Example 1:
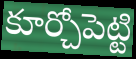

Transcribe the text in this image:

కూర్చోపెట్టి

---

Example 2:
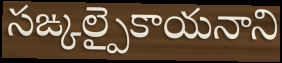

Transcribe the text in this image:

సఙ్కల్పైకాయనాని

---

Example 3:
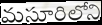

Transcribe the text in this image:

మసూరిలోని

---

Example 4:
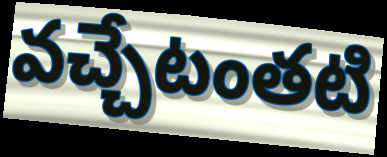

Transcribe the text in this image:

వచ్చేటంతటి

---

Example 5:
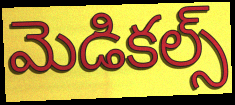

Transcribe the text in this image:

మెడికల్స్